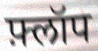
फ़्लॉप